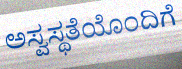
ಅಸ್ವಸ್ಥತೆಯೊಂದಿಗೆ